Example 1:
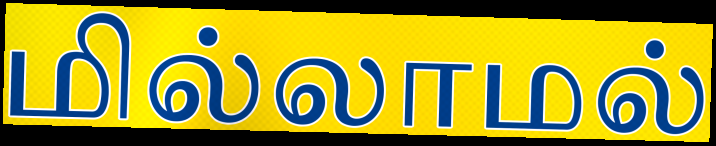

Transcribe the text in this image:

மில்லாமல்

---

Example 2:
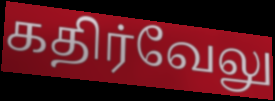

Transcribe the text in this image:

கதிர்வேலு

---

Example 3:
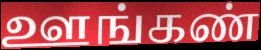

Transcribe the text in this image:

ஊங்கண்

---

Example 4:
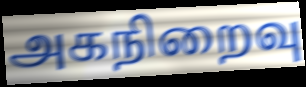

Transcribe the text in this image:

அகநிறைவு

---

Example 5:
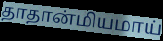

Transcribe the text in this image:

தாதான்மியமாய்